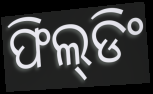
ଫିଲ୍‌ଡିଂ